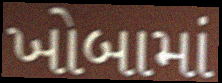
ખોબામાં